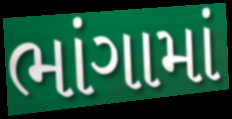
ભાંગામાં